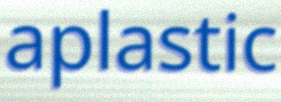
aplastic